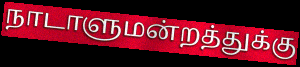
நாடாளுமன்றத்துக்கு